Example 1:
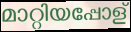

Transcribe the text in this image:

മാറ്റിയപ്പോള്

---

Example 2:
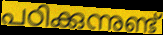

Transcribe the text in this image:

പഠിക്കുന്നുണ്ട്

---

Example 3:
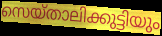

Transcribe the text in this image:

സെയ്താലിക്കുട്ടിയും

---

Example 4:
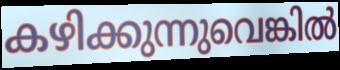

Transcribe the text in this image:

കഴിക്കുന്നുവെങ്കിൽ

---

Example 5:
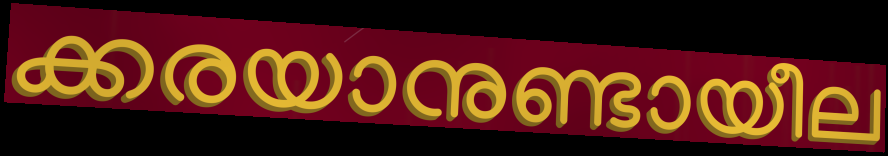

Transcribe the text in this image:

ക്കരയാനുണ്ടായീല